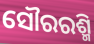
ସୌରରଶ୍ମି